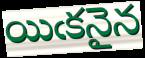
యిఁకనైన